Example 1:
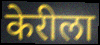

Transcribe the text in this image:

केरीला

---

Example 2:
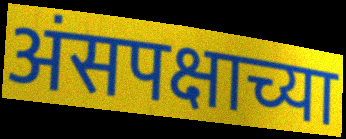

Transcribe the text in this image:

अंसपक्षाच्या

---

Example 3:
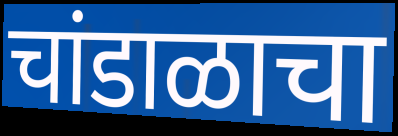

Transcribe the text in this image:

चांडाळाचा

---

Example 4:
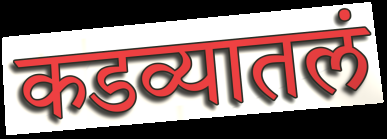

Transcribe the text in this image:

कडव्यातलं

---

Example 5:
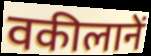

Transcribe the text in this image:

वकीलानें